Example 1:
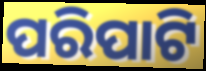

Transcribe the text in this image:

ପରିପାଟି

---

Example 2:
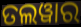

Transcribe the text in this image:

ତଲୱାର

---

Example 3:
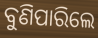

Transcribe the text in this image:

ବୁଣିପାରିଲେ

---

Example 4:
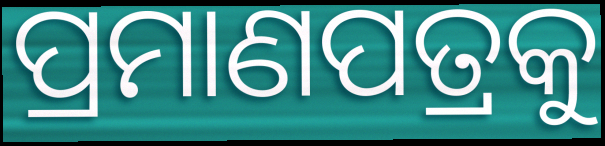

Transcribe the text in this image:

ପ୍ରମାଣପତ୍ରକୁ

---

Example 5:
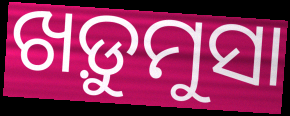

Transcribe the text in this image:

ଖଡ଼ୁମୁସା